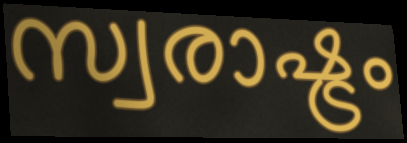
സ്വരാഷ്ട്രം